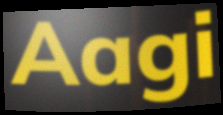
Aagi